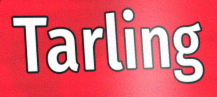
Tarling